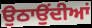
ਉਠਾਉਂਦੀਆਂ